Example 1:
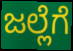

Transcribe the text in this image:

ಜಲ್ಲೆಗೆ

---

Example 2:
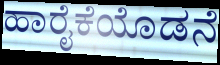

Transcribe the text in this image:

ಹಾರೈಕೆಯೊಡನೆ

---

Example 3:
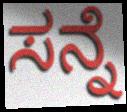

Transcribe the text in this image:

ಸನ್ನೆ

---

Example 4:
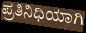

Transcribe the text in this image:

ಪ್ರತಿನಿಧಿಯಾಗಿ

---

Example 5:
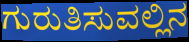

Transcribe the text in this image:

ಗುರುತಿಸುವಲ್ಲಿನ